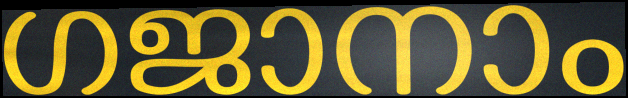
ഗജാനാം